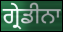
ਗ੍ਰੇਡੀਨਾ